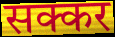
सक्कर